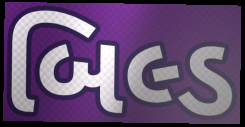
બિલ્ડ